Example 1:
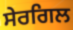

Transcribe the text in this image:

ਸੇਰਗਿਲ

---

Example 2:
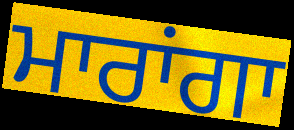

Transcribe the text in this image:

ਮਾਰਾਂਗਾ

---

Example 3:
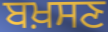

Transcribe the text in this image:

ਬਖ਼ਸਣ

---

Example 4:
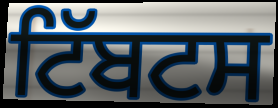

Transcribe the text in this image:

ਟਿੱਬਟਸ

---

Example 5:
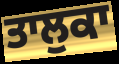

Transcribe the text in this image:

ਤਾਲੁਕਾ